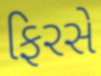
ફિરસે